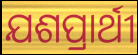
ଯଶପ୍ରାର୍ଥୀ